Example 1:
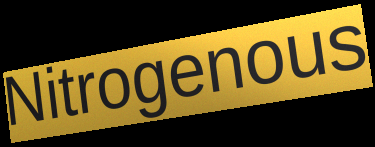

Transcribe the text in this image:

Nitrogenous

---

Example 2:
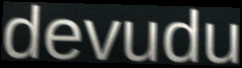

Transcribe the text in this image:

devudu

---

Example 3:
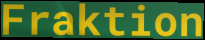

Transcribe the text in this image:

Fraktion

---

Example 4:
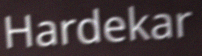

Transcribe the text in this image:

Hardekar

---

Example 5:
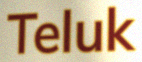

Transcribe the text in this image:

Teluk